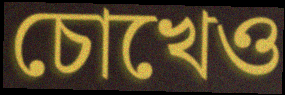
চোখেও